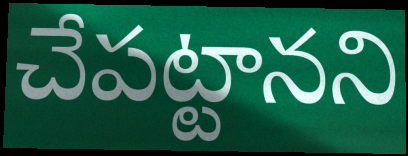
చేపట్టానని